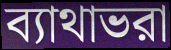
ব্যাথাভরা